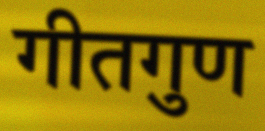
गीतगुण